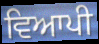
ਵਿਆਪੀ